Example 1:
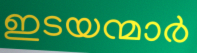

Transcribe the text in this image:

ഇടയന്മാർ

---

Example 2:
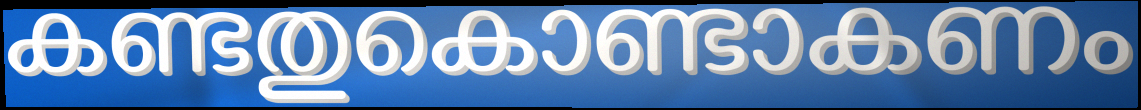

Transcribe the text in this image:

കണ്ടതുകൊണ്ടാകണം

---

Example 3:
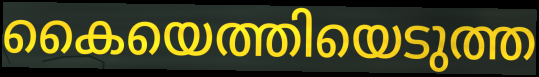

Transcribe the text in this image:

കൈയെത്തിയെടുത്ത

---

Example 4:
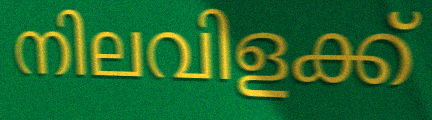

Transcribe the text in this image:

നിലവിളക്ക്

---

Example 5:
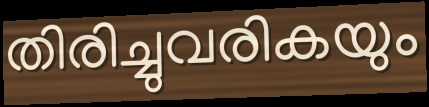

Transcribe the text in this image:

തിരിച്ചുവരികയും